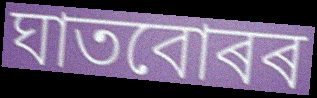
ঘাতবোৰৰ